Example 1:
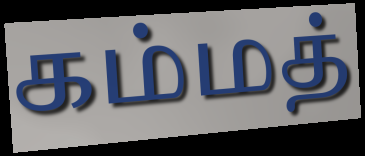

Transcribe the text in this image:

கம்மத்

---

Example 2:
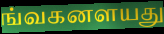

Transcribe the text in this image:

ங்வகனளயது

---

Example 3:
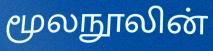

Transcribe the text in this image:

மூலநூலின்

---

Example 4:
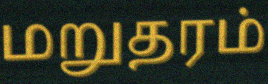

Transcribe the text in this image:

மறுதரம்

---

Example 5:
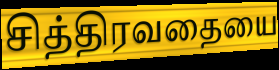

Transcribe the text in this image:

சித்திரவதையை